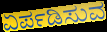
ಏರ್ಪಡಿಸುವ